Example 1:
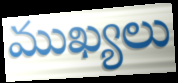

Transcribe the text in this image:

ముఖ్యలు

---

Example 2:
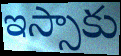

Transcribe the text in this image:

ఇస్సాకు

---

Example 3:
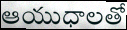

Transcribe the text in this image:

ఆయుధాలతో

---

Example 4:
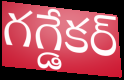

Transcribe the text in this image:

గగ్డేకర్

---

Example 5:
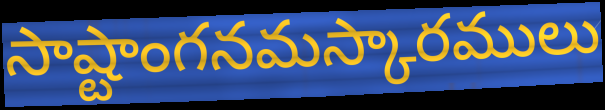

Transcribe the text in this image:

సాష్టాంగనమస్కారములు